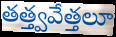
తత్త్వవేత్తలూ